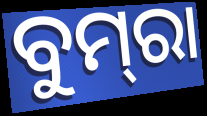
ବୁମ୍‌ରା